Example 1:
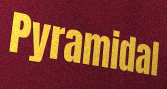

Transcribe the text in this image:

Pyramidal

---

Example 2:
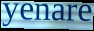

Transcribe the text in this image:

yenare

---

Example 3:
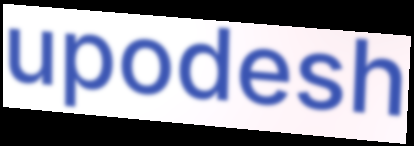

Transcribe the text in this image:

upodesh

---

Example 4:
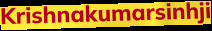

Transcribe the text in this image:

Krishnakumarsinhji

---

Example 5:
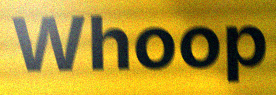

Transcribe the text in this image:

Whoop